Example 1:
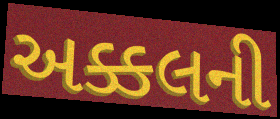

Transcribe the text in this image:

અક્કલની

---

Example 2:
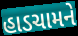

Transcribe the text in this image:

હાડચામને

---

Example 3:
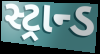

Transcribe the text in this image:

સ્ટ્રાન્ડ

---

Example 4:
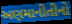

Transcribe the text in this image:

અણમાનીતીનો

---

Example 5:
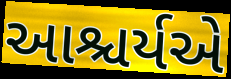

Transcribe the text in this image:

આશ્ચર્યએ